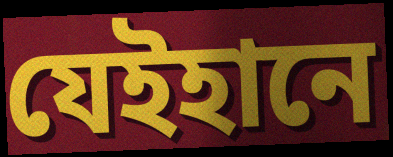
যেইহানে